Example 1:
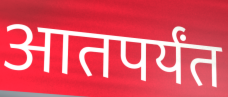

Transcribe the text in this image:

आतपर्यंत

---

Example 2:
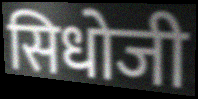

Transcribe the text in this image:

सिधोजी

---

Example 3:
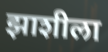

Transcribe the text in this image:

झाशीला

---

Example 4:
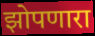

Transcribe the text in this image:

झोपणारा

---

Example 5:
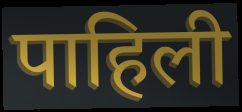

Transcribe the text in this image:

पाहिली